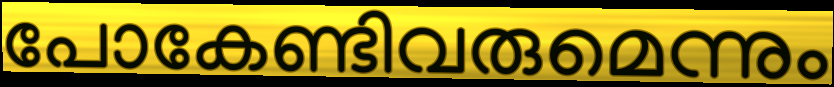
പോകേണ്ടിവരുമെന്നും